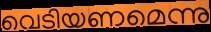
വെടിയണമെന്നു